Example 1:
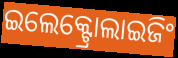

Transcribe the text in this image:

ଇଲେକ୍ଟ୍ରୋଲାଇଜିଂ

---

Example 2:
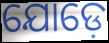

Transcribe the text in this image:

ଯୋଡ଼େ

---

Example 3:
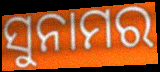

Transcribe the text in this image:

ସୁନାମର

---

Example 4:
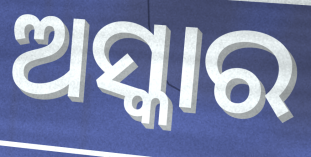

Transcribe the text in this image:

ଅସ୍କାର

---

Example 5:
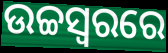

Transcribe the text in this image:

ଉଚ୍ଚସ୍ଵରରେ